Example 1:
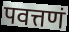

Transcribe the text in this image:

पवत्तणं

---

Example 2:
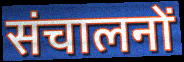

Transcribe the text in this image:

संचालनों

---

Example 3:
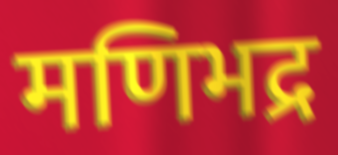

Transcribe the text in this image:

मणिभद्र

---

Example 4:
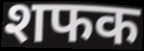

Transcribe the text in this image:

शफक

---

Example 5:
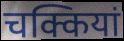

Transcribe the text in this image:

चक्कियां